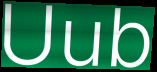
Uub